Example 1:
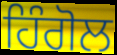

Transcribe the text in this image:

ਹਿੰਗੋਲ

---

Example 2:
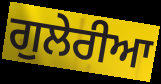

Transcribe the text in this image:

ਗੁਲੇਰੀਆ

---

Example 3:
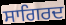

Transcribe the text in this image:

ਸਾਗਿਰਦ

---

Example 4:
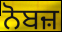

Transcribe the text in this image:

ਨੋਬਜ਼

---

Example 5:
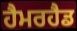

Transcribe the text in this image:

ਹੈਮਰਹੈਡ